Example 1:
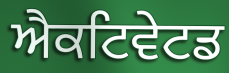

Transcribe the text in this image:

ਐਕਟਿਵੇਟਡ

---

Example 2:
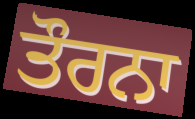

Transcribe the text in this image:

ਤੌਰਨਾ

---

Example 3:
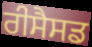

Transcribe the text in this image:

ਰੀਸੈਸਡ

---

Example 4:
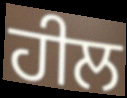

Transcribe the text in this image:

ਹੀਲ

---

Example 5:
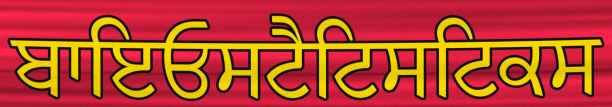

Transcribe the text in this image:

ਬਾਇਓਸਟੈਟਿਸਟਿਕਸ